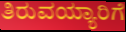
ತಿರುವಯ್ಯಾರಿಗೆ